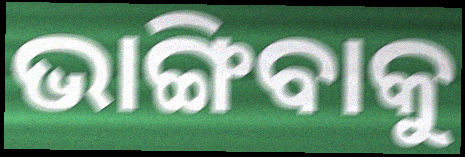
ଭାଙ୍ଗିବାକୁ